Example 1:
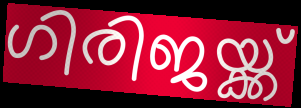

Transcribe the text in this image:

ഗിരിജയ്ക്ക്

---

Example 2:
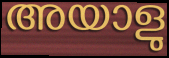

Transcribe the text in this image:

അയാളു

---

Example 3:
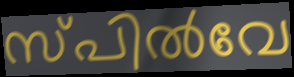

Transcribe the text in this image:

സ്പിൽവേ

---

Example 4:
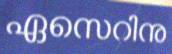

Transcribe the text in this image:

ഏസെറിനു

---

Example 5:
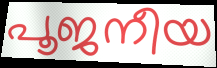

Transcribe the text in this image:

പൂജനീയ